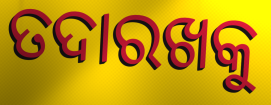
ତଦାରଖକୁ